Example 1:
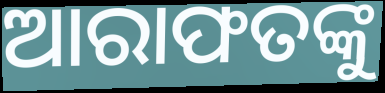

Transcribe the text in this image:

ଆରାଫତଙ୍କୁ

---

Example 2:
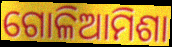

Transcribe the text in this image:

ଗୋଳିଆମିଶା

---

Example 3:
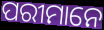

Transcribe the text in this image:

ପରୀମାନେ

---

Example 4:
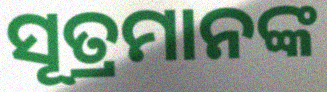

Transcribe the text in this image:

ସୂତ୍ରମାନଙ୍କ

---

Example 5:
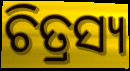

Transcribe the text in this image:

ଚିତ୍ରସ୍ୟ